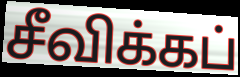
சீவிக்கப்